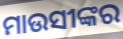
ମାଉସୀଙ୍କର